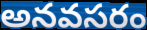
అనవసరం